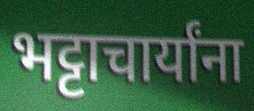
भट्टाचार्यांना